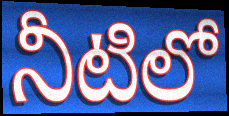
నీటిలో